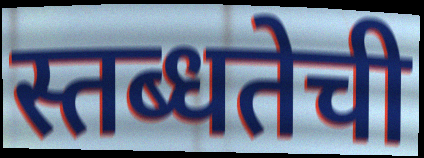
स्तब्धतेची